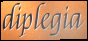
diplegia